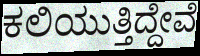
ಕಲಿಯುತ್ತಿದ್ದೇವೆ